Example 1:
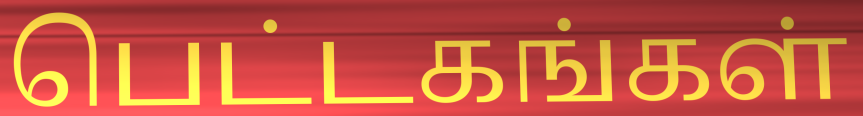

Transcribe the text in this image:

பெட்டகங்கள்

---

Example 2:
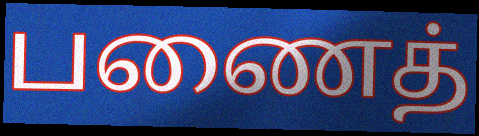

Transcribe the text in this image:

பணைத்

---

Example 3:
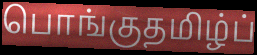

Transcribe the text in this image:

பொங்குதமிழ்ப்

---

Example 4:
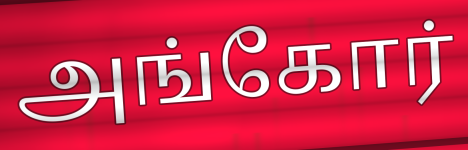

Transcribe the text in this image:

அங்கோர்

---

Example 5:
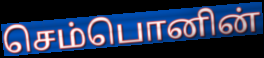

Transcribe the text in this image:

செம்பொனின்